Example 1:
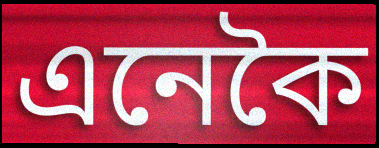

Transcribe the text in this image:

এনেকৈ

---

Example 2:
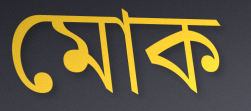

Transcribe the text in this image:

মোক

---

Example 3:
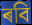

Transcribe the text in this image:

ৰবি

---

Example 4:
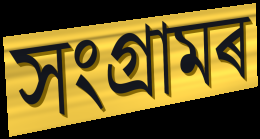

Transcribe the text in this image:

সংগ্ৰামৰ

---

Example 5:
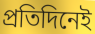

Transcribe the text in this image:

প্ৰতিদিনেই